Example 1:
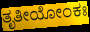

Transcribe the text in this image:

ತೃತೀಯೋಂಕಃ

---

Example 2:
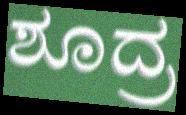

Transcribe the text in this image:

ಶೂದ್ರ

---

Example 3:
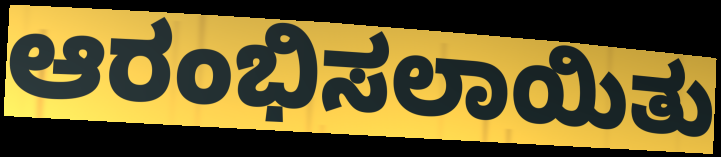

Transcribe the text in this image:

ಆರಂಭಿಸಲಾಯಿತು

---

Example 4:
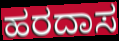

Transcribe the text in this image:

ಹರದಾಸ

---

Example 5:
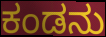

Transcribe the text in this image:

ಕಂಡನು